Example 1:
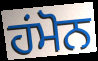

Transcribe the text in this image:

ਹਂਮੋਨ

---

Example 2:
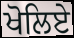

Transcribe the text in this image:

ਖੋਲਿਏ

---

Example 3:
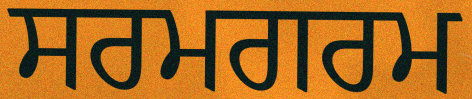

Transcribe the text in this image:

ਸਰਮਗਰਮ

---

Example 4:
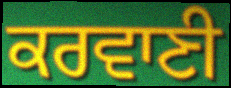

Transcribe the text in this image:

ਕਰਵਾਣੀ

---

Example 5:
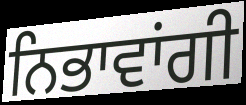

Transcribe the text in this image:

ਨਿਭਾਵਾਂਗੀ